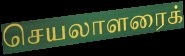
செயலாளரைக்